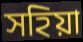
সহিয়া